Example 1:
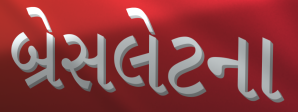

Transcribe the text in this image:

બ્રેસલેટના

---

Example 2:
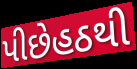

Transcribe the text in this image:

પીછેહઠથી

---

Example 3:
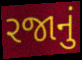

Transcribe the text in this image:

રજાનું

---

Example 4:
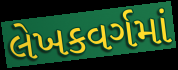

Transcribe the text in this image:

લેખકવર્ગમાં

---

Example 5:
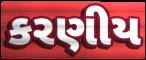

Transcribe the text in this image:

કરણીય